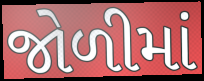
જોળીમાં